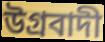
উগ্ৰবাদী